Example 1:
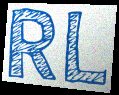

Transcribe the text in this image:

RL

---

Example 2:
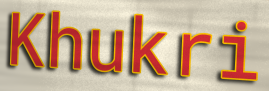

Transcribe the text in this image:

Khukri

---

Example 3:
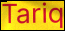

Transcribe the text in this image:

Tariq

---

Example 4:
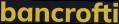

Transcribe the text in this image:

bancrofti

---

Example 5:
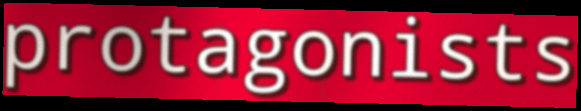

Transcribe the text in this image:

protagonists